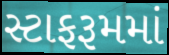
સ્ટાફરૂમમાં